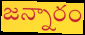
జన్నారం